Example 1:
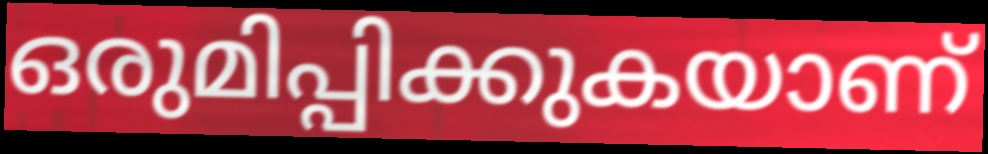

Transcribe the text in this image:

ഒരുമിപ്പിക്കുകയാണ്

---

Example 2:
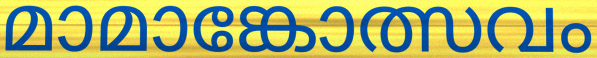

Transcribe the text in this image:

മാമാങ്കോത്സവം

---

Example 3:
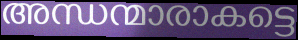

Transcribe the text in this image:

അന്ധന്മാരാകട്ടെ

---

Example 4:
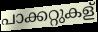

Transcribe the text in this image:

പാക്കറ്റുകള്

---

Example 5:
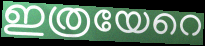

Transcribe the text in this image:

ഇത്രയേറെ